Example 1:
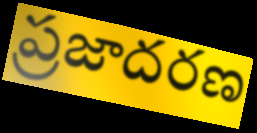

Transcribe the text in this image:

ప్రజాదరణ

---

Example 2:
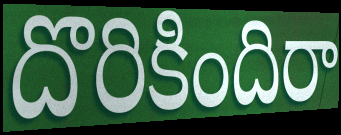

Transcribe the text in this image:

దొరికిందిరా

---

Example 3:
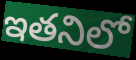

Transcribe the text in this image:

ఇతనిలో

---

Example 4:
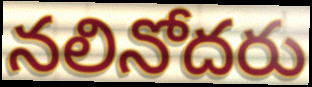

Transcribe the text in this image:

నలినోదరు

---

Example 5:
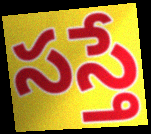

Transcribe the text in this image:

సస్తే